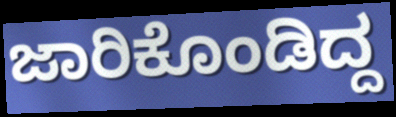
ಜಾರಿಕೊಂಡಿದ್ದ